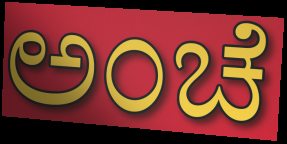
ಅಂಚೆ